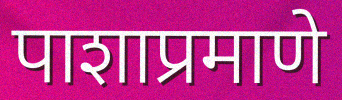
पाशाप्रमाणे